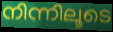
നിന്നിലൂടെ